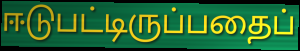
ஈடுபட்டிருப்பதைப்